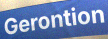
Gerontion